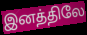
இனத்திலே